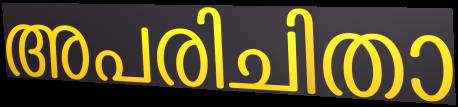
അപരിചിതാ